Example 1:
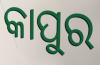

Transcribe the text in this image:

କାପୁର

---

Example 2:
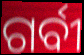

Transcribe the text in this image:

ଗର୍ବୀ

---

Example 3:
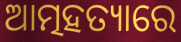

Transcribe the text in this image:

ଆତ୍ମହତ୍ୟାରେ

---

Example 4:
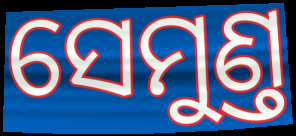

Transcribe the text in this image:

ସେମୁଣ୍ତ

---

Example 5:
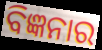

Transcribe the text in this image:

ବିଜ୍ଞନାର